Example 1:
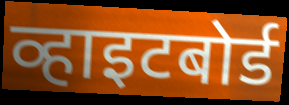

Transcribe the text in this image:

व्हाइटबोर्ड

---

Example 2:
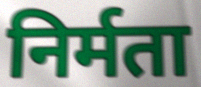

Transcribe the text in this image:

निर्मता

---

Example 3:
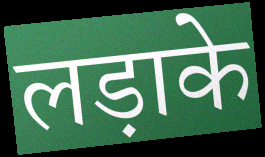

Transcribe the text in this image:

लड़ाके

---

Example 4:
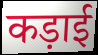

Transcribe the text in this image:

कड़ाई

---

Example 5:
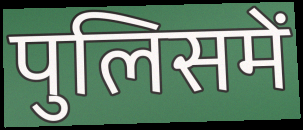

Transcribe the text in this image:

पुलिसमें